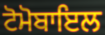
ਟੋਮੋਬਾਇਲ